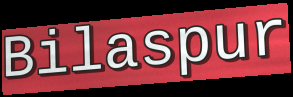
Bilaspur